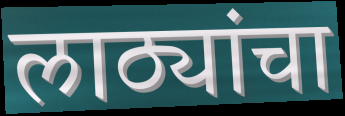
लाठ्यांचा